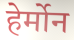
हेर्मोन